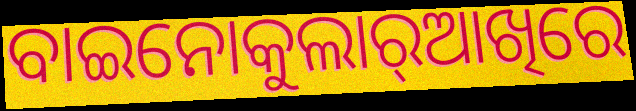
ବାଇନୋକୁଲାର୍‌ଆଖିରେ